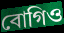
বোগিও